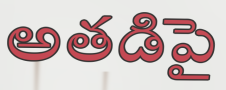
అతడిపై